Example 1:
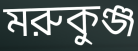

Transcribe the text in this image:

মরুকুঞ্জ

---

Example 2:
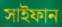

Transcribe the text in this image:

সাইফান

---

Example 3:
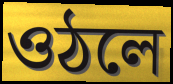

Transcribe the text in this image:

ওঠলে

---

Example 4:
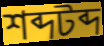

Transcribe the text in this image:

শব্দটব্দ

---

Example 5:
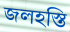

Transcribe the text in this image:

জলহস্তি